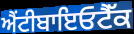
ਐਂਟੀਬਾਇਓਟੈੱਕ